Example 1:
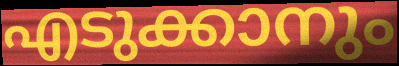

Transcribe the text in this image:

എടുക്കാനും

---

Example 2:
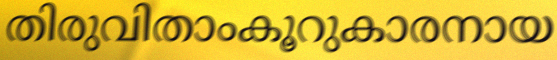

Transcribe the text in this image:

തിരുവിതാംകൂറുകാരനായ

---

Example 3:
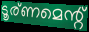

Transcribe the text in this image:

ടൂര്ണമെന്റ്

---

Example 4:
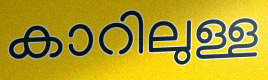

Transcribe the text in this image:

കാറിലുള്ള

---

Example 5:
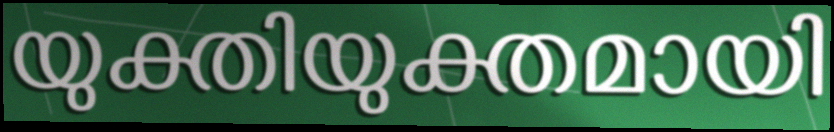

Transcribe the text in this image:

യുക്തിയുക്തമായി